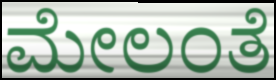
ಮೇಲಂತೆ